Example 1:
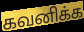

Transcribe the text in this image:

கவனிக்க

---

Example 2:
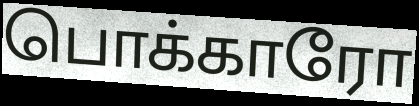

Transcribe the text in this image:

பொக்காரோ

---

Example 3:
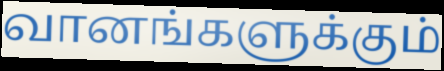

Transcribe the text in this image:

வானங்களுக்கும்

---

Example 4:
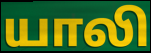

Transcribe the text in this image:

யாலி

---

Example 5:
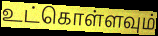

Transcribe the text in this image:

உட்கொள்ளவும்